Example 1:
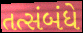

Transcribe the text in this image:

તત્સંબંધે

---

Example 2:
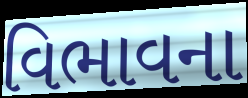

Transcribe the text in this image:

વિભાવના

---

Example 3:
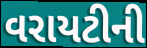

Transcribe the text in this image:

વરાયટીની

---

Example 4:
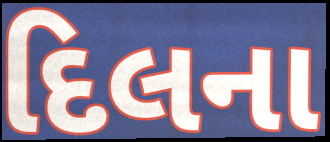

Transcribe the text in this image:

દિલના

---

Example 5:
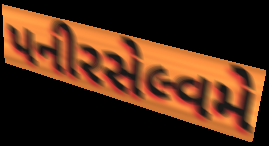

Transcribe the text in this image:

પનીરસેલ્વમે